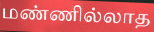
மண்ணில்லாத